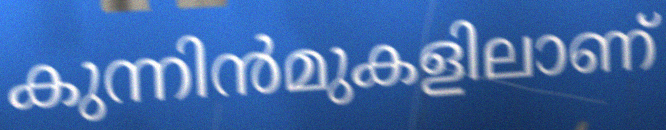
കുന്നിൻമുകളിലാണ്